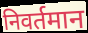
निवर्तमान